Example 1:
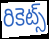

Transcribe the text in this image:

రికెట్స్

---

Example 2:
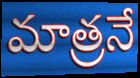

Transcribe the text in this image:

మాత్రనే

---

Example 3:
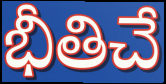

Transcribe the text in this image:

భీతిచే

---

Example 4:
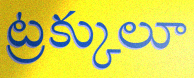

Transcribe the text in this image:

ట్రక్కులూ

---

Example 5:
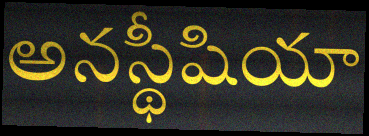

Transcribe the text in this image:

అనస్థీషియా